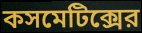
কসমেটিক্সের